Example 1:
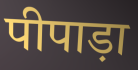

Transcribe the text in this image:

पीपाड़ा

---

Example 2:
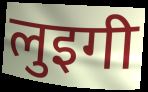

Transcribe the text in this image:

लुइगी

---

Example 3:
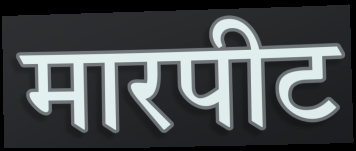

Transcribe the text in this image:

मारपीट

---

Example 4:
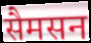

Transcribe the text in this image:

सैमसन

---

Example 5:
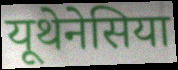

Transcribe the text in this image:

यूथेनेसिया